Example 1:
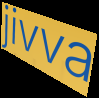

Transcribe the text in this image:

jivva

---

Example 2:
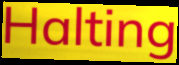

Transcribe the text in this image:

Halting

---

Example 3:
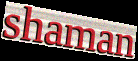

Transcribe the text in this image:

shaman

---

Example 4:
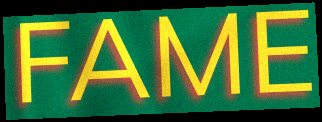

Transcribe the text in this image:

FAME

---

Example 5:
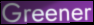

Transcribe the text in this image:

Greener